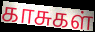
காசுகள்